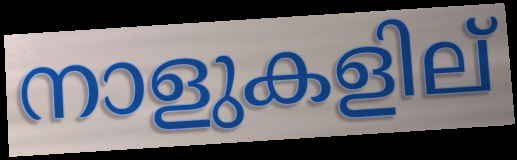
നാളുകളില്